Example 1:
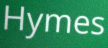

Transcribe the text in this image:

Hymes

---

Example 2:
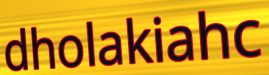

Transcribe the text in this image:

dholakiahc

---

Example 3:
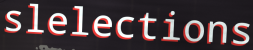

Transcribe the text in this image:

slelections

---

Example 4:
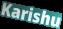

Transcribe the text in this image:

Karishu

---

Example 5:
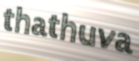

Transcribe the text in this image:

thathuva